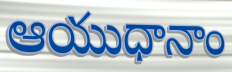
ఆయుధానాం